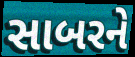
સાબરને